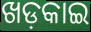
ଖଡ଼କାଇ